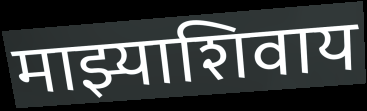
माझ्याशिवाय